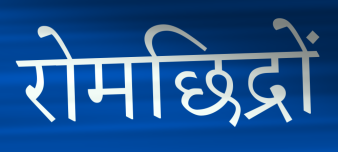
रोमछिद्रों